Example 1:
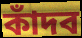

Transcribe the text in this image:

কাঁদব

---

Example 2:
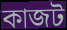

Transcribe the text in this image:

কাজট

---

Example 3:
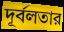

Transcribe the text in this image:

দূর্বলতার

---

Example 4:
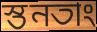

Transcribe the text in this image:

স্তনতাং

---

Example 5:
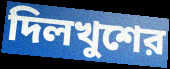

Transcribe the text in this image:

দিলখুশের